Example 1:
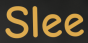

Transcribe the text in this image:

Slee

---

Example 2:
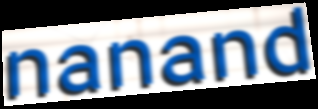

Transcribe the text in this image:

nanand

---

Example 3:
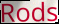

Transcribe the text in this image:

Rods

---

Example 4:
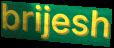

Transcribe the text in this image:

brijesh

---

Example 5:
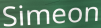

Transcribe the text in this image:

Simeon